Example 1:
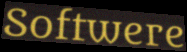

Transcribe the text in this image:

Softwere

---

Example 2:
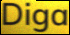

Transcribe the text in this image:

Diga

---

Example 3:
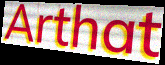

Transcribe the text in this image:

Arthat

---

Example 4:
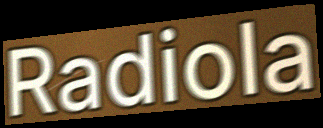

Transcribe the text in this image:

Radiola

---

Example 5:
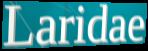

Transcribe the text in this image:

Laridae